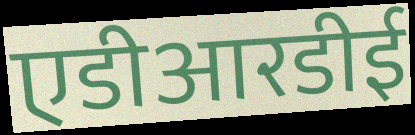
एडीआरडीई